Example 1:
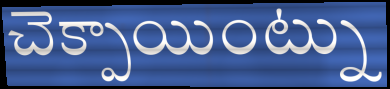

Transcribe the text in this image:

చెక్పాయింట్ను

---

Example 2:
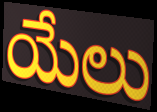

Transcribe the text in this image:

యేలు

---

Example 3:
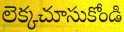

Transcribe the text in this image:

లెక్కచూసుకోండి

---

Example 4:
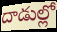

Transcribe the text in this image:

దాడుల్లో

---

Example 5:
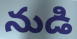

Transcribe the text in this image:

నుడి